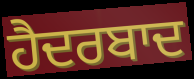
ਹੈਦਰਬਾਦ